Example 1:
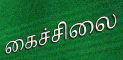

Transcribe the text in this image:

கைச்சிலை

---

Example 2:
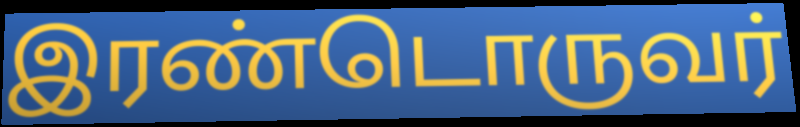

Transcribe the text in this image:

இரண்டொருவர்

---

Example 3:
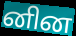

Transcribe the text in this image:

னின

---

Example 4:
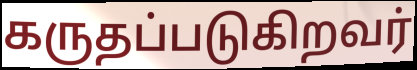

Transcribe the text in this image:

கருதப்படுகிறவர்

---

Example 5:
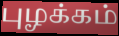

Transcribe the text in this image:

புழக்கம்